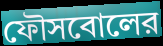
ফৌসবোলের